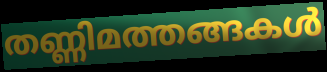
തണ്ണിമത്തങ്ങകൾ